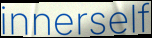
innerself